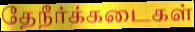
தேநீர்க்கடைகள்